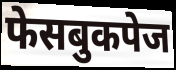
फेसबुकपेज